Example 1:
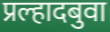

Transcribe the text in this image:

प्रल्हादबुवा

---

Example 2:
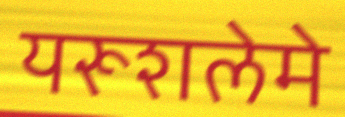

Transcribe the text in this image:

यरूशलेमे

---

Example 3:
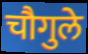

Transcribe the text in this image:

चौगुले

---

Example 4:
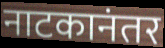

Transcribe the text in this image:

नाटकानंतर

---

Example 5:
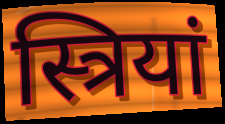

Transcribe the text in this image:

स्त्रियां